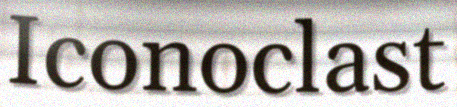
Iconoclast